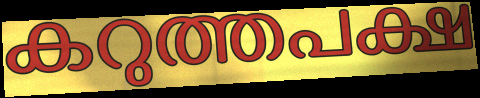
കറുത്തപക്ഷ